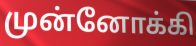
முன்னோக்கி